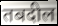
तबदील